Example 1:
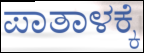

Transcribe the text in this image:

ಪಾತಾಳಕ್ಕೆ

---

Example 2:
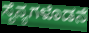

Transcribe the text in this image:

ಸೈನ್ಯಗಳೊಡನೆ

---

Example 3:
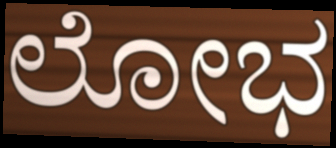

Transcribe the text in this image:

ಲೋಭ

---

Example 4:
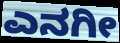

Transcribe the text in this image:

ಎನಗೀ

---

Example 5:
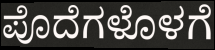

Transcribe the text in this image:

ಪೊದೆಗಳೊಳಗೆ